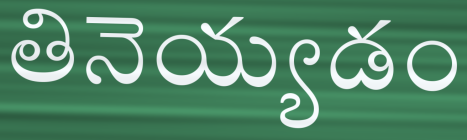
తినెయ్యడం